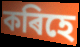
কৰিহে